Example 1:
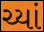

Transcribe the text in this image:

ચ્યાં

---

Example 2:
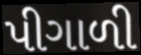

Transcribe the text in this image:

પીગાળી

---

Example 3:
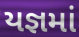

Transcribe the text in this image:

યજ્ઞમાં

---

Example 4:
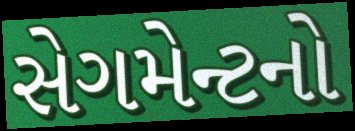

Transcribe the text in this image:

સેગમેન્ટનો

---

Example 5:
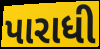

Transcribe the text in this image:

પારાધી